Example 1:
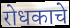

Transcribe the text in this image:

रोधकाचे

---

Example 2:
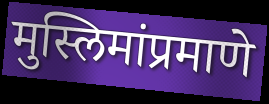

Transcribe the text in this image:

मुस्लिमांप्रमाणे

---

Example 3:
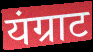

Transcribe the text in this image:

यंग्राट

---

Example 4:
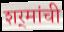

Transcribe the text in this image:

शर्मांची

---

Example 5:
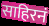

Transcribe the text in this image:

साहिरनं